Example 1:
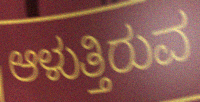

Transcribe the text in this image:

ಆಳುತ್ತಿರುವ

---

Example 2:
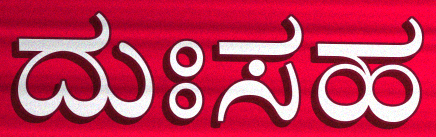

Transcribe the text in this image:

ದುಃಸಹ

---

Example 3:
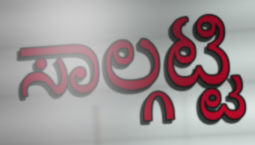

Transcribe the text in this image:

ಸಾಲ್ಗಟ್ಟಿ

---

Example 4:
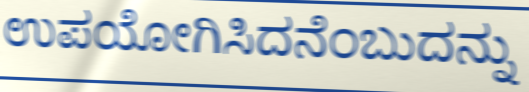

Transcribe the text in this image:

ಉಪಯೋಗಿಸಿದನೆಂಬುದನ್ನು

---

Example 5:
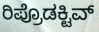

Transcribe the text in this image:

ರಿಪ್ರೊಡಕ್ಟಿವ್